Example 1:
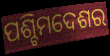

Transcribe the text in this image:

ପଶ୍ଚିମଦେଶର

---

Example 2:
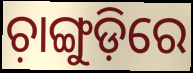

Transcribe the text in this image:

ଚ଼ାଙ୍ଗୁଡ଼ିରେ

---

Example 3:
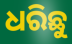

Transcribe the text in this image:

ଧରିଛୁ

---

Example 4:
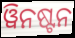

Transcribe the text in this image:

ୱିନଷ୍ଟନ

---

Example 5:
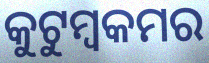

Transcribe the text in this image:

କୁଟୁମ୍ବକମର